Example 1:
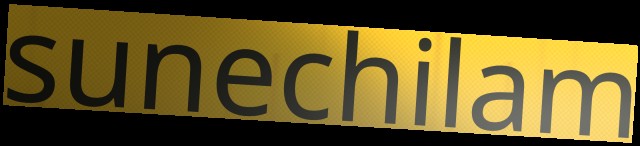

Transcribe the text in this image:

sunechilam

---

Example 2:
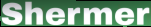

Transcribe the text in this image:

Shermer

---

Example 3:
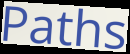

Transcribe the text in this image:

Paths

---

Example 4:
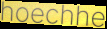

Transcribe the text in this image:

hoechhe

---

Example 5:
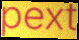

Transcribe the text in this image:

pext